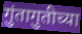
गुंतागुतीच्या